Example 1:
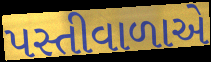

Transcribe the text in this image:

પસ્તીવાળાએ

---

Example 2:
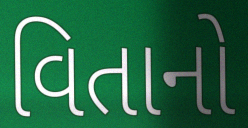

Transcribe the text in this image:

વિતાનો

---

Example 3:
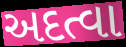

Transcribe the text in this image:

અદત્વા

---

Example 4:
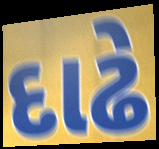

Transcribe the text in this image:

દાઢે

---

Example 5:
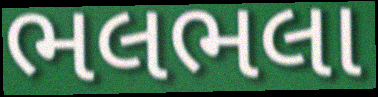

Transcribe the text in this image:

ભલભલા